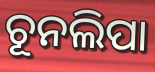
ଚୂନଲିପା